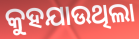
କୁହଯାଉଥିଲା